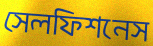
সেলফিশনেস